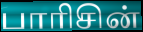
பாரிசின்